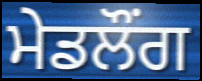
ਮੇਡਲੌਂਗ